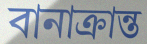
বানাক্ৰান্ত